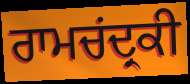
ਰਾਮਚਂਦ੍ਰਕੀ